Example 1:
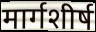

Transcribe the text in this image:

मार्गशीर्ष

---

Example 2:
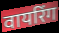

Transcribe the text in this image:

वायरिंग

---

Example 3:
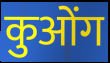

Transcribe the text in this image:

कुओंग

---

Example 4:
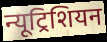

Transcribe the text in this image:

न्यूट्रिशियन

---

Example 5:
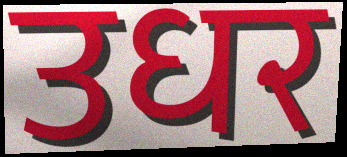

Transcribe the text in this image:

उधर